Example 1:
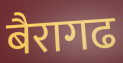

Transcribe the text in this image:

बैरागढ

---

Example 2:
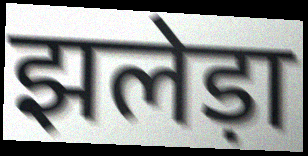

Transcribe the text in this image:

झलेड़ा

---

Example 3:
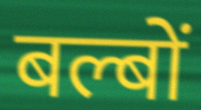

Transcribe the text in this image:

बल्बों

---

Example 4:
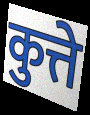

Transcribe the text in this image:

कुत्ते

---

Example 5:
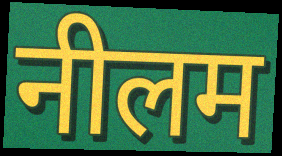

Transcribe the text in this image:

नीलम